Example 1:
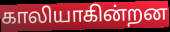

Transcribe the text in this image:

காலியாகின்றன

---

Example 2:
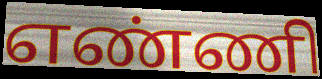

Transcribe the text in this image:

எண்ணி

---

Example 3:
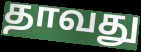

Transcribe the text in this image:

தாவது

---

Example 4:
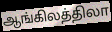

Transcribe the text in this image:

ஆங்கிலத்திலா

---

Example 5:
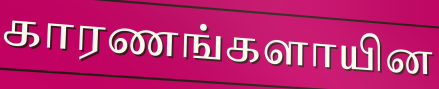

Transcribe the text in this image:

காரணங்களாயின